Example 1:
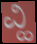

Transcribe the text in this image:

ವ್ಹಿ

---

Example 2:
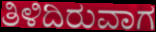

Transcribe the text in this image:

ತಿಳಿದಿರುವಾಗ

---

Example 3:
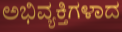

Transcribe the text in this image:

ಅಭಿವ್ಯಕ್ತಿಗಳಾದ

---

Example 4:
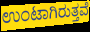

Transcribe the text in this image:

ಉಂಟಾಗಿರುತ್ತವೆ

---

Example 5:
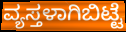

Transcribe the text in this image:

ವ್ಯಸ್ತಳಾಗಿಬಿಟ್ಟೆ